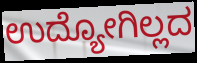
ಉದ್ಯೋಗಿಲ್ಲದ